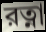
রত্না